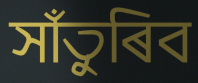
সাঁতুৰিব